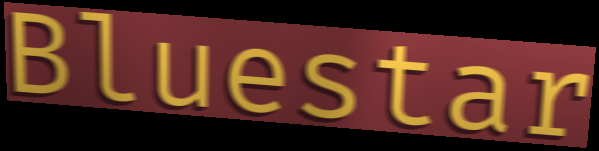
Bluestar